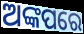
ଅଙ୍କପରେ